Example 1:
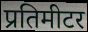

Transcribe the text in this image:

प्रतिमीटर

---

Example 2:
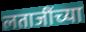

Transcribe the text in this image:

लताजींच्या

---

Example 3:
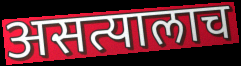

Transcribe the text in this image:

असत्यालाच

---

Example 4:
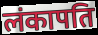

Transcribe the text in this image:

लंकापति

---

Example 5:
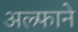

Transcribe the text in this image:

अल्फाने